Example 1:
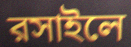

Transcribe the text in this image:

রসাইলে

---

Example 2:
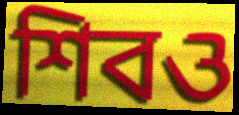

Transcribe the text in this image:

শিবও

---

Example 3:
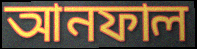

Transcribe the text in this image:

আনফাল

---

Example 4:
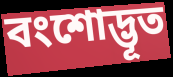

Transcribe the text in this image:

বংশোদ্ভূত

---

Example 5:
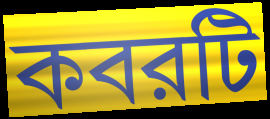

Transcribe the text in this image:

কবরটি